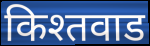
किश्तवाड